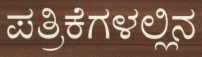
ಪತ್ರಿಕೆಗಳಲ್ಲಿನ